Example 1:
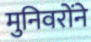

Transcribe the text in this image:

मुनिवरोंने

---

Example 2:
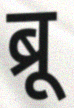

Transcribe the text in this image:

ब्रू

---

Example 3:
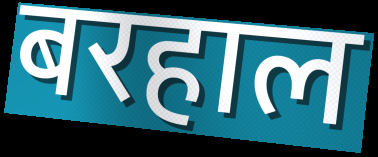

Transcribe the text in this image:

बरहाल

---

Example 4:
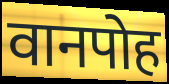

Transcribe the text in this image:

वानपोह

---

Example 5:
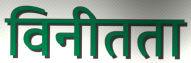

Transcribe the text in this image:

विनीतता